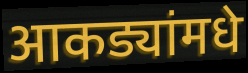
आकड्यांमधे